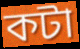
কটা